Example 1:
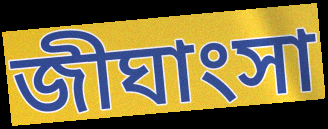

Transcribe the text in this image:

জীঘাংসা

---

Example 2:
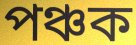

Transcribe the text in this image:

পঞ্চক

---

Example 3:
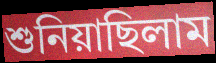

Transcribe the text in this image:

শুনিয়াছিলাম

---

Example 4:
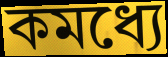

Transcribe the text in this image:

কমধ্যে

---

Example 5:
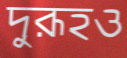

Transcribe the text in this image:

দুরূহও